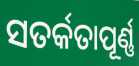
ସତର୍କତାପୂର୍ଣ୍ଣ